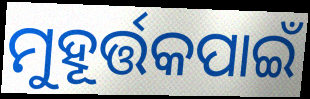
ମୁହୂର୍ତ୍ତକପାଇଁ